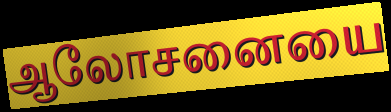
ஆலோசனையை